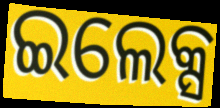
ଇଲେକ୍ସ